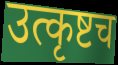
उत्कृष्टच